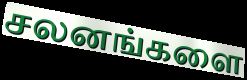
சலனங்களை